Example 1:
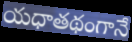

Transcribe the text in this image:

యధాతథంగానే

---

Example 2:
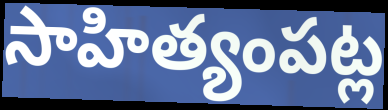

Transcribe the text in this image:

సాహిత్యంపట్ల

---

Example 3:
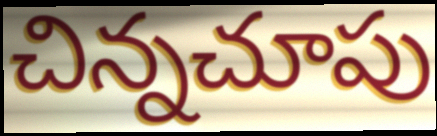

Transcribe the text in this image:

చిన్నచూపు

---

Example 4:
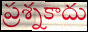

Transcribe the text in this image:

ప్రశ్నకాదు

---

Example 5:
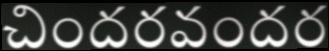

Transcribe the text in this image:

చిందరవందర